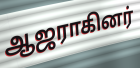
ஆஜராகினர்